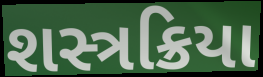
શસ્ત્રક્રિયા